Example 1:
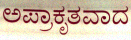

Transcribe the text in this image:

ಅಪ್ರಾಕೃತವಾದ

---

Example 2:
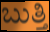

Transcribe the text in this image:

ಬುತ್ತಿ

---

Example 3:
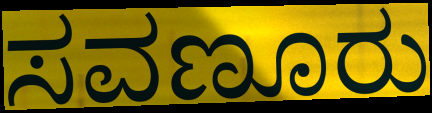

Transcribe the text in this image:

ಸವಣೂರು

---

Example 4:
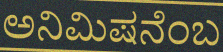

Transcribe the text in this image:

ಅನಿಮಿಷನೆಂಬ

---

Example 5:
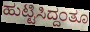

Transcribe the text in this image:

ಹುಟ್ಟಿಸಿದ್ದಂತೂ